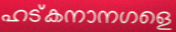
ഹട്കനാനഗളെ